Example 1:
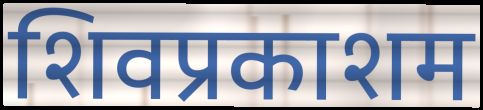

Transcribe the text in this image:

शिवप्रकाशम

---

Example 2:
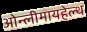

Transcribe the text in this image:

ओन्लीमायहेल्थ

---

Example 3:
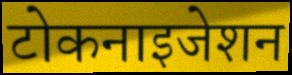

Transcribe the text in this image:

टोकनाइजेशन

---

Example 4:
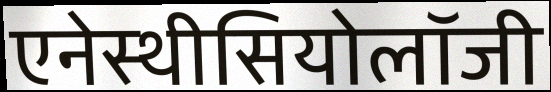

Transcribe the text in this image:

एनेस्थीसियोलॉजी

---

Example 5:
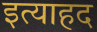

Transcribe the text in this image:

इत्याहद